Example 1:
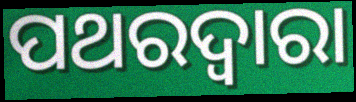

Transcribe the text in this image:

ପଥରଦ୍ୱାରା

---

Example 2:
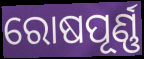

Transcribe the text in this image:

ରୋଷପୂର୍ଣ୍ଣ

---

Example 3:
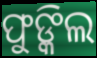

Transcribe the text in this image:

ଫୁଙ୍କିଲ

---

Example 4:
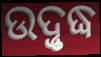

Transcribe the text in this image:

ଉଦ୍ବୃଦ୍ଧ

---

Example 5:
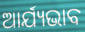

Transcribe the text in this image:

ଆର୍ଯ୍ୟଭାବ